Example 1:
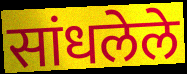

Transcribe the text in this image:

सांधलेले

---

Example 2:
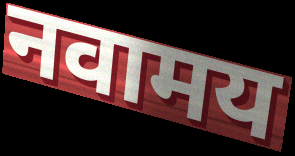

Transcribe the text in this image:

नवामय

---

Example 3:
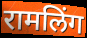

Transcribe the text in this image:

रामलिंग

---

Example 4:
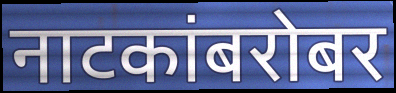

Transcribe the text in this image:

नाटकांबरोबर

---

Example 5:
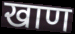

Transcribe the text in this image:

खाण